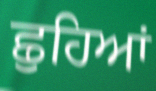
ਛੁਹਿਆਂ